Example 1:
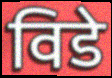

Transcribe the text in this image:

विडे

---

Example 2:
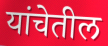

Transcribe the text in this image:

यांचेतील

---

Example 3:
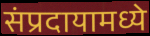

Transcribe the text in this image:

संप्रदायामध्ये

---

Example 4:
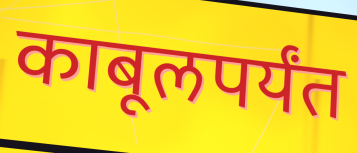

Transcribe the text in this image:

काबूलपर्यंत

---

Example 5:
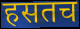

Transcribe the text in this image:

हसतच